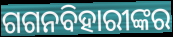
ଗଗନବିହାରୀଙ୍କର